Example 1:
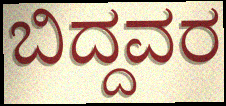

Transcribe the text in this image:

ಬಿದ್ದವರ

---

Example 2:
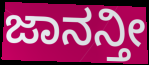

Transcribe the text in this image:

ಜಾನನ್ತೀ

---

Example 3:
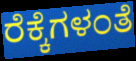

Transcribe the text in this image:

ರೆಕ್ಕೆಗಳಂತೆ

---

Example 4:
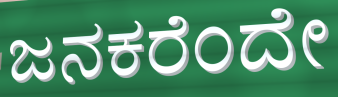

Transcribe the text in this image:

ಜನಕರೆಂದೇ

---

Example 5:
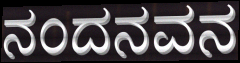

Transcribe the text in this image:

ನಂದನವನ